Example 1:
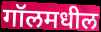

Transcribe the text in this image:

गॉलमधील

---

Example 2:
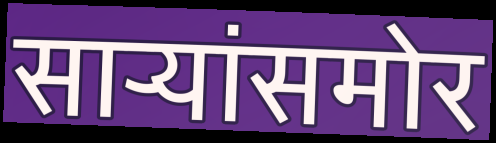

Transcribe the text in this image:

साऱ्यांसमोर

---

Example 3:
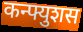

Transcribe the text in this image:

कन्फ्युशस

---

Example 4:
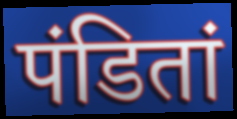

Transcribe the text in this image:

पंडितां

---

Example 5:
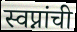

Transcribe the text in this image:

स्वप्नांची